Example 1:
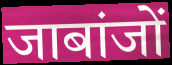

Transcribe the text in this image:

जाबांजों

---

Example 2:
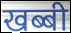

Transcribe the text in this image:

खब्बी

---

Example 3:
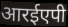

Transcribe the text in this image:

आरईएपी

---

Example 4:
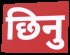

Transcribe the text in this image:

छिनु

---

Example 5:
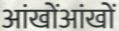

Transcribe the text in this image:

आंखोंआंखों